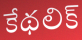
కేథలిక్